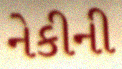
નેકીની